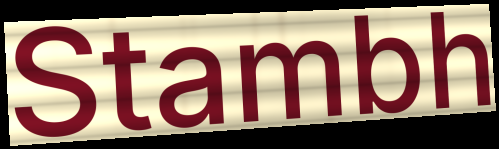
Stambh